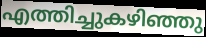
എത്തിച്ചുകഴിഞ്ഞു